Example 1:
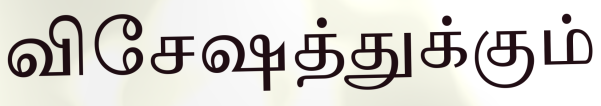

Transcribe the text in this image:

விசேஷத்துக்கும்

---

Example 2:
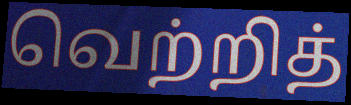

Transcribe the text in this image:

வெற்றித்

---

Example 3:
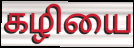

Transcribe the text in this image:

கழியை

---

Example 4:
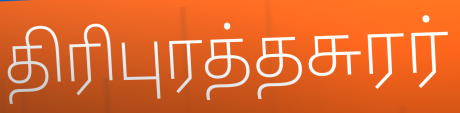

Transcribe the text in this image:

திரிபுரத்தசுரர்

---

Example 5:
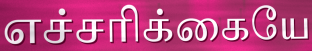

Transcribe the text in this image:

எச்சரிக்கையே